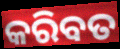
କରିବତ